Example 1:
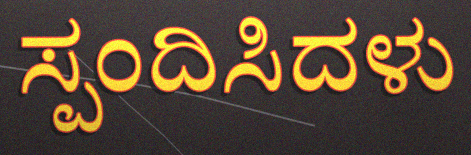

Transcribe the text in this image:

ಸ್ಪಂದಿಸಿದಳು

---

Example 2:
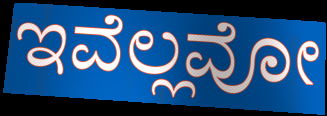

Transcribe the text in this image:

ಇವೆಲ್ಲವೋ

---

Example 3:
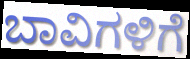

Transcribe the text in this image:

ಬಾವಿಗಳಿಗೆ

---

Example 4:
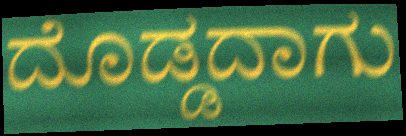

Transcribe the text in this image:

ದೊಡ್ಡದಾಗು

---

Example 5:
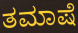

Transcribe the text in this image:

ತಮಾಷೆ